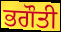
ਭਗੌਤੀ